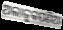
ଅଲାଜୁକପଣିଆ